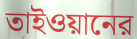
তাইওয়ানের